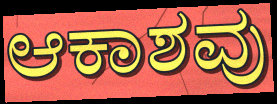
ಆಕಾಶವು